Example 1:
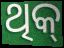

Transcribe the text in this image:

ଥିକ୍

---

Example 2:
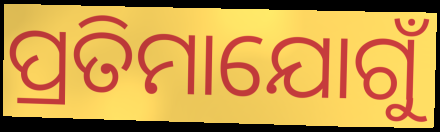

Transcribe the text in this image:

ପ୍ରତିମାଯୋଗୁଁ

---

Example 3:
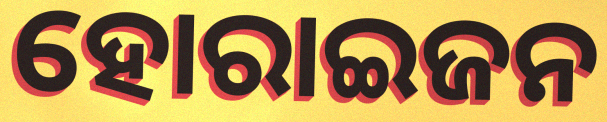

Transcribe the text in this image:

ହୋରାଇଜନ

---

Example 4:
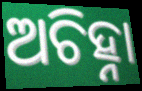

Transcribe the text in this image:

ଅଚିହ୍ନା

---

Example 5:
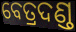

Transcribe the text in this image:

ବେତ୍ରଦଣ୍ଡ